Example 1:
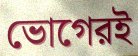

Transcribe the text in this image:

ভোগেরই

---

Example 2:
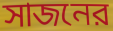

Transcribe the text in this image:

সাজনের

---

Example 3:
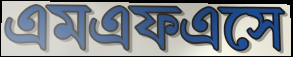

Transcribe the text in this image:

এমএফএসে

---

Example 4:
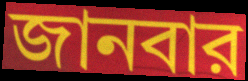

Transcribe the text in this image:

জানবার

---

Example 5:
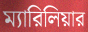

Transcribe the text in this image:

ম্যারিলিয়ার